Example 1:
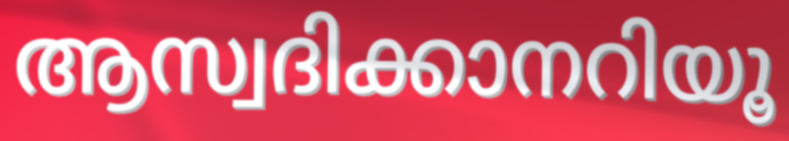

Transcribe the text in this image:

ആസ്വദിക്കാനറിയൂ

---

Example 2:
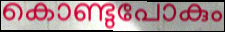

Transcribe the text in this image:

കൊണ്ടുപോകും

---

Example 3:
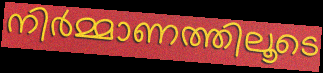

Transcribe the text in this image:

നിർമ്മാണത്തിലൂടെ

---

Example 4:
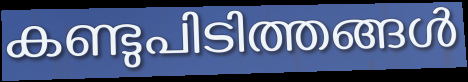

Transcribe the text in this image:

കണ്ടുപിടിത്തങ്ങൾ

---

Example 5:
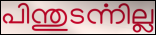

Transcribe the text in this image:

പിന്തുടൎന്നില്ല